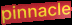
pinnacle